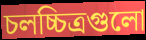
চলচ্চিত্রগুলো